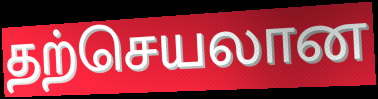
தற்செயலான